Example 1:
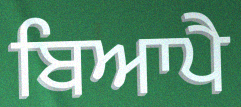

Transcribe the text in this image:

ਬਿਆਪੈ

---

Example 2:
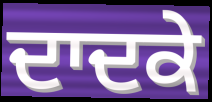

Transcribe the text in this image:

ਦਾਦਕੇ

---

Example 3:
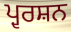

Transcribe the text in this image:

ਪ੍ਦਰਸ਼ਨ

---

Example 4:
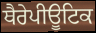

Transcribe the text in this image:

ਥੈਰੇਪੀਊਟਿਕ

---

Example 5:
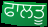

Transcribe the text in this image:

ਫਾਲਤੂ